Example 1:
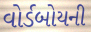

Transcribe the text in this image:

વોર્ડબોયની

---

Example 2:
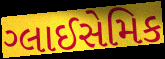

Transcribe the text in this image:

ગ્લાઈસેમિક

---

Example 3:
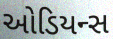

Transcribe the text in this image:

ઓડિયન્સ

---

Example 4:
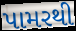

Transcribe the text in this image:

પામરથી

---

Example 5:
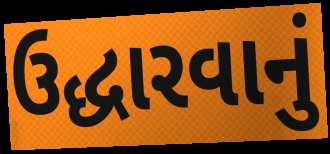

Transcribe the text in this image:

ઉદ્ધારવાનું